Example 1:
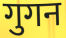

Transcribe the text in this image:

गुगन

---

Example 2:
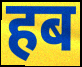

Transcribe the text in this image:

हब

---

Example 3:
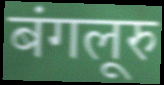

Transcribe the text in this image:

बंगलूरु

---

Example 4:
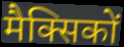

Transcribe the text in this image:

मैक्सिकों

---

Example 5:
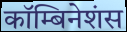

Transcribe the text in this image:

कॉम्बिनेशंस